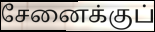
சேனைக்குப்